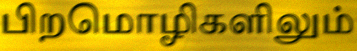
பிறமொழிகளிலும்